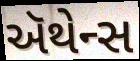
ઍથેન્સ